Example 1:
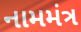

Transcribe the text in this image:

નામમંત્ર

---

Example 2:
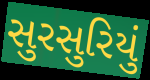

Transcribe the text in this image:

સુરસુરિયું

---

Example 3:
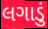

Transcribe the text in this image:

લગાડું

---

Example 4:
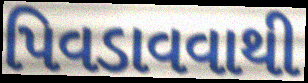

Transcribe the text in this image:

પિવડાવવાથી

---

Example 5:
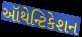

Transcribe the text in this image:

ઑથેન્ટિકેશન